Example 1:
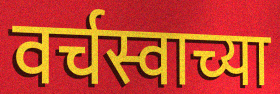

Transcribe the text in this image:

वर्चस्वाच्या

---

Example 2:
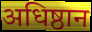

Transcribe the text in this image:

अधिष्ठान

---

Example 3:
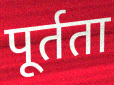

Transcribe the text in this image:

पूर्तता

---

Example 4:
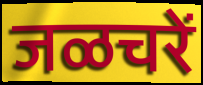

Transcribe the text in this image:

जळचरें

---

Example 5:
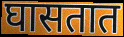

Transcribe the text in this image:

घासतात